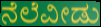
ನೆಲೆವೀಡು